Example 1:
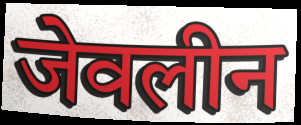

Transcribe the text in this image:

जेवलीन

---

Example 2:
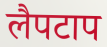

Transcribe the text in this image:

लैपटाप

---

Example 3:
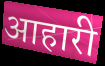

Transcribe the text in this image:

आहारी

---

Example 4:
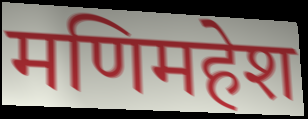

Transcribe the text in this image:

मणिमहेश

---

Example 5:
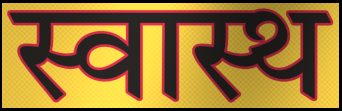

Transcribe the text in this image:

स्‍वास्‍थ